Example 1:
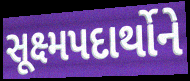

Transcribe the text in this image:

સૂક્ષ્મપદાર્થોને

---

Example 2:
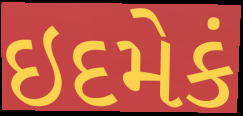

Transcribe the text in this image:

ઇદમેકં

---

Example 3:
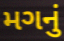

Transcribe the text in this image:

મગનું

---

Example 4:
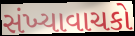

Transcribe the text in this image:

સંખ્યાવાચકો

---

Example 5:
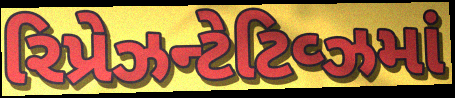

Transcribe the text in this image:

રિપ્રેઝન્ટેટિવ્ઝમાં